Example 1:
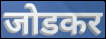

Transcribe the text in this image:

जोडकर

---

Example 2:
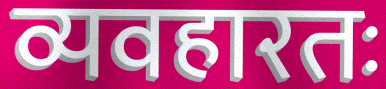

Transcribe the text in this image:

व्यवहारतः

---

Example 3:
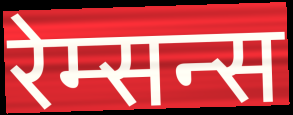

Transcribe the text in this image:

रेम्सन्स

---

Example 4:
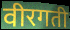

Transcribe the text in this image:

वीरगती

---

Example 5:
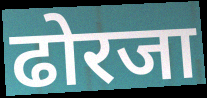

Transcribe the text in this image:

ढोरजा